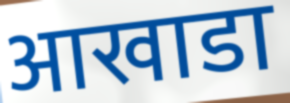
आखाडा